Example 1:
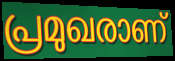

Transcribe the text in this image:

പ്രമുഖരാണ്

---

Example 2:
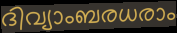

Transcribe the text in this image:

ദിവ്യാംബരധരാം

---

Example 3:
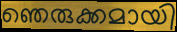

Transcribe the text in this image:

ഞെരുക്കമായി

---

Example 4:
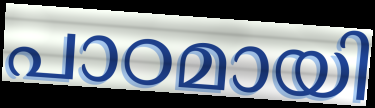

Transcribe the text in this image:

പാഠമായി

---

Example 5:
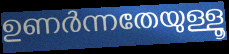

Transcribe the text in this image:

ഉണർന്നതേയുള്ളൂ